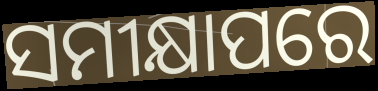
ସମୀକ୍ଷାପରେ